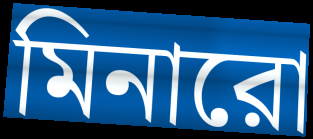
মিনারো